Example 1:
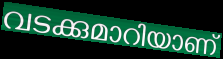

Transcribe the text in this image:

വടക്കുമാറിയാണ്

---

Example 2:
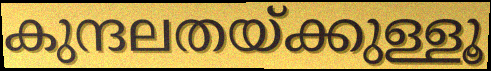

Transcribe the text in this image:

കുന്ദലതയ്ക്കുള്ളൂ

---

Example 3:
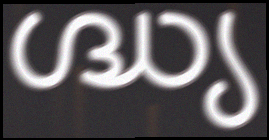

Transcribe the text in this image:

ഗ്ദ്ധ്യ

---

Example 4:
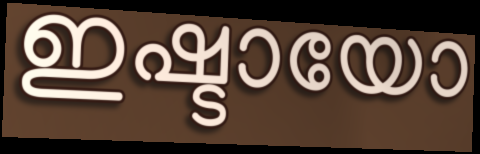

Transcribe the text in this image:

ഇഷ്ടായോ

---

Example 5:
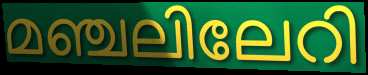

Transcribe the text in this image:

മഞ്ചലിലേറി